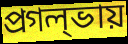
প্রগল্‌ভায়